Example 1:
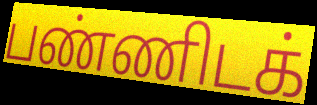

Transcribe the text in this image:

பண்ணிடக்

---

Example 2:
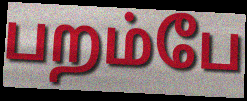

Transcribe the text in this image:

பறம்பே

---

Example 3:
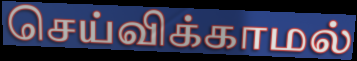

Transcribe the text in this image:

செய்விக்காமல்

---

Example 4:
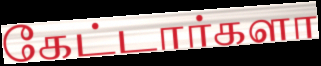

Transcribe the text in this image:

கேட்டார்களா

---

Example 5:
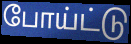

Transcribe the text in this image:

போய்ட்டு